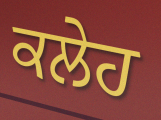
ਕਲੇਹ